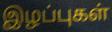
இழப்புகள்